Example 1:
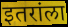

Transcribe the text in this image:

इतरांला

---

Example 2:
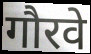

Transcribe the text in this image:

गौरवे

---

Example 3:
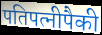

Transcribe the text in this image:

पतिपत्नीपैकी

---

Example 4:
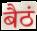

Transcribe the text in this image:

बैठं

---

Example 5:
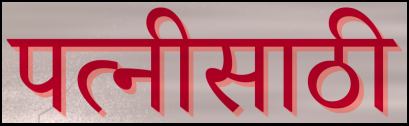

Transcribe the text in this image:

पत्नीसाठी